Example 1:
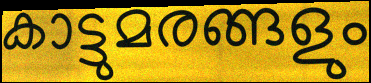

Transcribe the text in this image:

കാട്ടുമരങ്ങളും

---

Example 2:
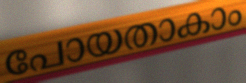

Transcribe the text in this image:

പോയതാകാം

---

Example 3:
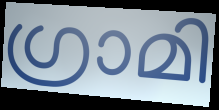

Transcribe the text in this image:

ഗ്രാമി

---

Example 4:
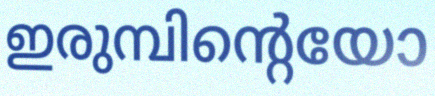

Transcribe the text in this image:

ഇരുമ്പിന്റെയോ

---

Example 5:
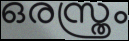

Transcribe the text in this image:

ഒരസ്ത്രം